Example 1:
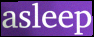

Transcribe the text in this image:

asleep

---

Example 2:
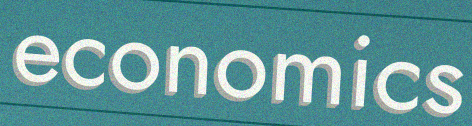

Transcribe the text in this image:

economics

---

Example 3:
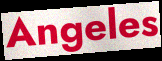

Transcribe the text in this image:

Angeles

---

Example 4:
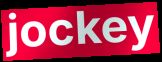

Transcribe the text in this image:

jockey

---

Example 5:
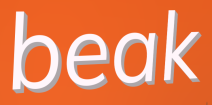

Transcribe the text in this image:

beak